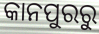
କାନପୁରରୁ